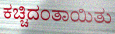
ಕಚ್ಚಿದಂತಾಯಿತು